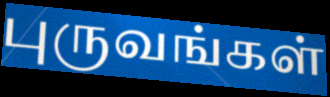
புருவங்கள்